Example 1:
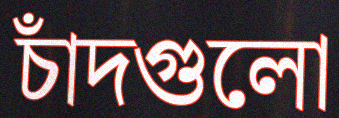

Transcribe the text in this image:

চাঁদগুলো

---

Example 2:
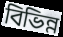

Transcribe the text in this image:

বিভিন্ন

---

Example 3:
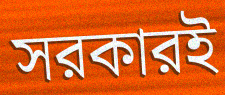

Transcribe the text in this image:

সরকারই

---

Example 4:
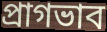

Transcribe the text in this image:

প্রাগভাব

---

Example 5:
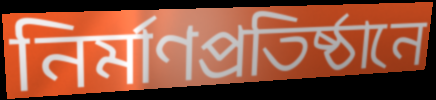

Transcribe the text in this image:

নির্মাণপ্রতিষ্ঠানে